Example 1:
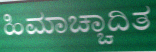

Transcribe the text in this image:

ಹಿಮಾಚ್ಚಾದಿತ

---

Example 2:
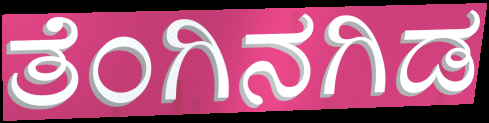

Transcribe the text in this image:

ತೆಂಗಿನಗಿಡ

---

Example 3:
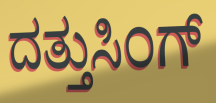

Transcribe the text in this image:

ದತ್ತುಸಿಂಗ್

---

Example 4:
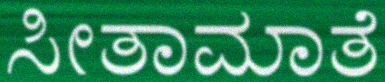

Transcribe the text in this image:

ಸೀತಾಮಾತೆ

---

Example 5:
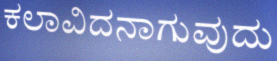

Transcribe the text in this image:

ಕಲಾವಿದನಾಗುವುದು